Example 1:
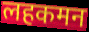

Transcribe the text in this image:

लहकमन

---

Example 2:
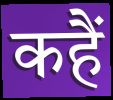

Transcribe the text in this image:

कहैं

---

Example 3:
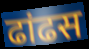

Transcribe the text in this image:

ढांढस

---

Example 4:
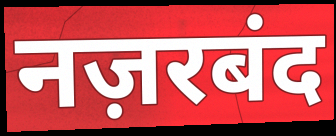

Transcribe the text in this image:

नज़रबंद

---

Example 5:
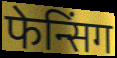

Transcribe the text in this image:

फेन्सिंग